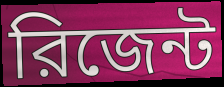
রিজেন্ট